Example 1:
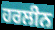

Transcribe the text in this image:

ਹਰਲੀਨ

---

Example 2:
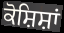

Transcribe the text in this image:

ਕੋਸ਼ਿਸ਼ਾਂ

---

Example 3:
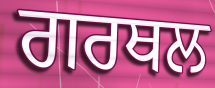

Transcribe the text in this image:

ਗਰਥਲ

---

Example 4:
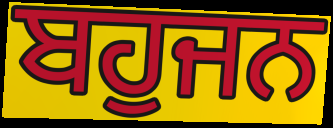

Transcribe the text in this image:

ਬਹੁਜਨ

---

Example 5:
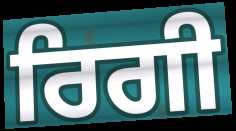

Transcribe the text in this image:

ਰਿਗੀ